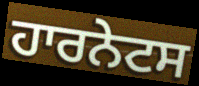
ਹਾਰਨੇਟਸ